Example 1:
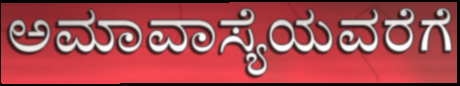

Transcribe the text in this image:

ಅಮಾವಾಸ್ಯೆಯವರೆಗೆ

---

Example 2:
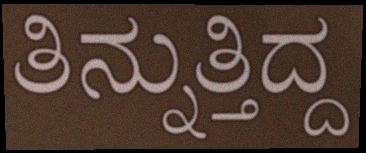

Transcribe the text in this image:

ತಿನ್ನುತ್ತಿದ್ದ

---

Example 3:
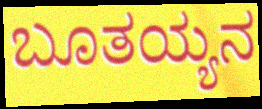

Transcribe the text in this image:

ಬೂತಯ್ಯನ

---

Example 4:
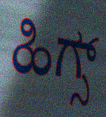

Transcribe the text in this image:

ಹಿಗ್ಸ್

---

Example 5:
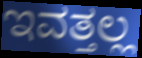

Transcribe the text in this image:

ಇವತ್ತಲ್ಲ